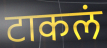
टाकलं